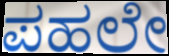
ಪಹಲೇ